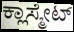
ಕ್ಲಾಸ್ಮೇಟ್